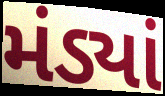
મંડ્યાં